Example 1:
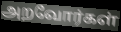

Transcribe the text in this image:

அறவோர்கள்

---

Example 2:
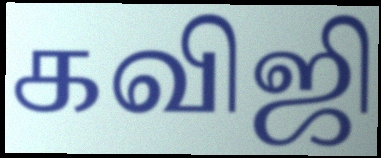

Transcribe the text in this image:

கவிஜி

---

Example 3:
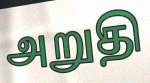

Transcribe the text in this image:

அறுதி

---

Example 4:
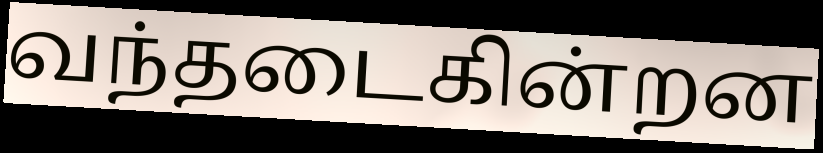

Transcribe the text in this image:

வந்தடைகின்றன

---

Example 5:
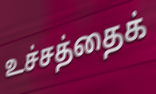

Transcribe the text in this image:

உச்சத்தைக்